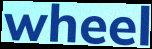
wheel